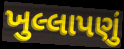
ખુલ્લાપણું